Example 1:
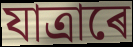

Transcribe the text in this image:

যাত্ৰাৰে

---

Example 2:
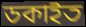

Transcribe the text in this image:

ডকাইত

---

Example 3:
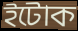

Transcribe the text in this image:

ইটোক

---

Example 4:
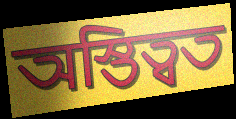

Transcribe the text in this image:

অস্তিত্বত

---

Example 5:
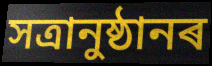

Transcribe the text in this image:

সত্ৰানুষ্ঠানৰ